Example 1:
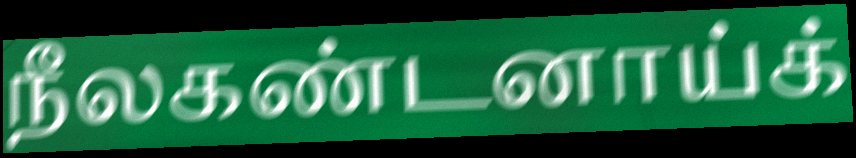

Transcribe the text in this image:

நீலகண்டனாய்க்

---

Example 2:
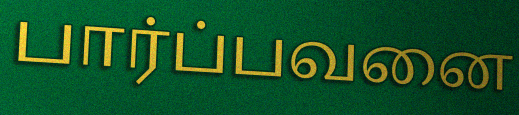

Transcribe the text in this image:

பார்ப்பவனை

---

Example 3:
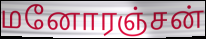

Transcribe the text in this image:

மனோரஞ்சன்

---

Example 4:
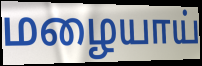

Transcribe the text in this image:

மழையாய்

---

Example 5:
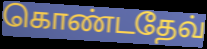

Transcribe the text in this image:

கொண்டதேவ்